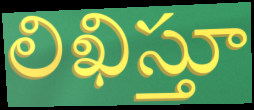
లిఖిస్తూ